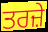
ਤਰਜ਼ੇ